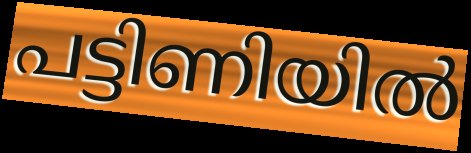
പട്ടിണിയിൽ